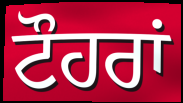
ਟੌਹਰਾਂ